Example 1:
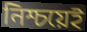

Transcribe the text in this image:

নিশ্চয়েই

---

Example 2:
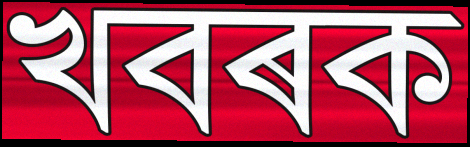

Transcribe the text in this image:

খবৰক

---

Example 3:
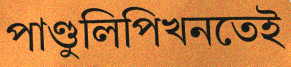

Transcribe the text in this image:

পাণ্ডুলিপিখনতেই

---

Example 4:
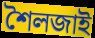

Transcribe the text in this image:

শৈলজাই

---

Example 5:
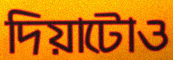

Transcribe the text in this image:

দিয়াটোও